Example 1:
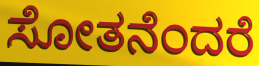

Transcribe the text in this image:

ಸೋತನೆಂದರೆ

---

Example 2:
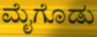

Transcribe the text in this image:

ಮೈಗೊಡು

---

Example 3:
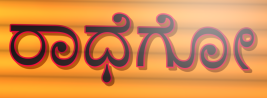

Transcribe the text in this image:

ರಾಧೆಗೋ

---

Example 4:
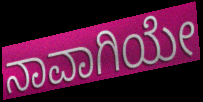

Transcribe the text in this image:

ನಾವಾಗಿಯೇ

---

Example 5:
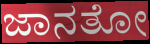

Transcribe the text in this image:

ಜಾನತೋ